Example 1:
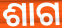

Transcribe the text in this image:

ଶାଗ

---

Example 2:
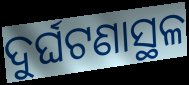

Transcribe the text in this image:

ଦୁର୍ଘଟଣାସ୍ଥଳ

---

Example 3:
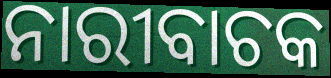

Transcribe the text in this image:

ନାରୀବାଚକ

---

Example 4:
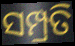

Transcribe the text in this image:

ସମ୍ପ୍ରତି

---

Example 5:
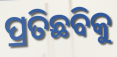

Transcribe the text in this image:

ପ୍ରତିଛବିକୁ